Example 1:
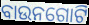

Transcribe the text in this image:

ବାଉନଗୋଟି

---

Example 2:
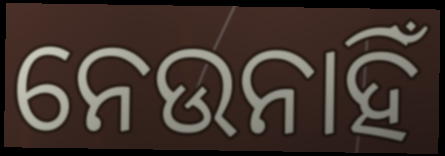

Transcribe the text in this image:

ନେଉନାହିଁ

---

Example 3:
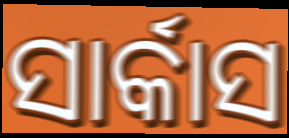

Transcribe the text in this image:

ସାର୍କାସ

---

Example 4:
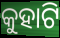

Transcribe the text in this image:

କୁହାଟି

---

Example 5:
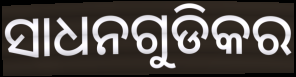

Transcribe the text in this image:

ସାଧନଗୁଡିକର